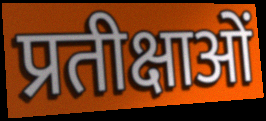
प्रतीक्षाओं